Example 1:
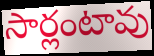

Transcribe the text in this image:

సార్లంటావు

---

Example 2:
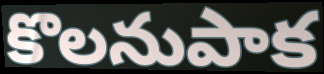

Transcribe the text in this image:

కొలనుపాక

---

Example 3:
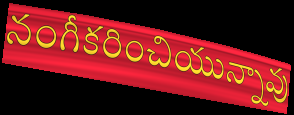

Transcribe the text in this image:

నంగీకరించియున్నావు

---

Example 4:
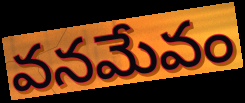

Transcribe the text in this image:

వనమేవం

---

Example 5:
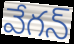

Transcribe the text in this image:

వేగన్